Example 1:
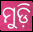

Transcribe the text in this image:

ମୁଡ଼ି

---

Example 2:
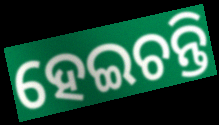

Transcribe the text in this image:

ହେଇଚନ୍ତି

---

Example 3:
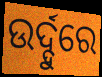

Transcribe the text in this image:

ଉର୍ଦ୍ଦୁରେ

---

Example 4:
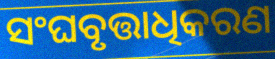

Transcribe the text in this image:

ସଂଘବୃତ୍ତାଧିକରଣ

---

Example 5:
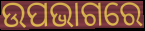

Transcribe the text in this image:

ଉପଭାଗରେ